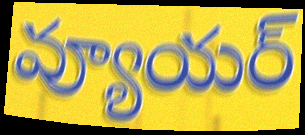
వ్యూయర్